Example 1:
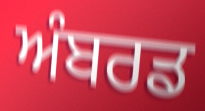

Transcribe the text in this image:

ਅੰਬਰਡ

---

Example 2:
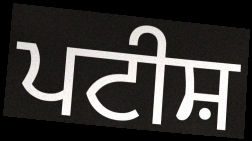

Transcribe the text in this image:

ਪਟੀਸ਼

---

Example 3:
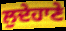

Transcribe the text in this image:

ਲੁਦੇਹਾਣੇ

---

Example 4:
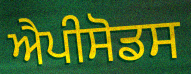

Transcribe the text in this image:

ਐਪੀਸੋਡਸ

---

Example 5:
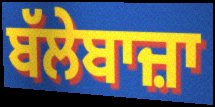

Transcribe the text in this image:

ਬੱਲੇਬਾਜ਼ਾ